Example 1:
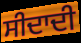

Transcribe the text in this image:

ਸੀਦਾਦੀ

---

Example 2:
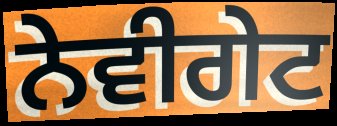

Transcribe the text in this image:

ਨੇਵੀਗੇਟ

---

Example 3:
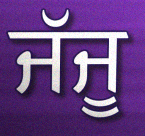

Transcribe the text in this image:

ਜੱਜੂ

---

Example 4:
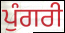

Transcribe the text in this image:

ਪੁੰਗਰੀ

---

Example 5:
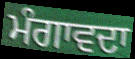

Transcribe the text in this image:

ਮੰਗਾਵਦਾ